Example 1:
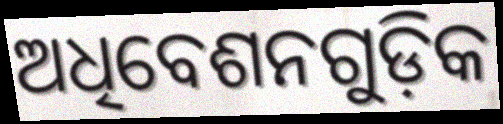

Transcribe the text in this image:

ଅଧିବେଶନଗୁଡ଼ିକ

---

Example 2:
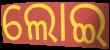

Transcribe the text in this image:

ଲୋଇ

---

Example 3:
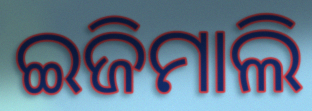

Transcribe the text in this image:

ଇଜିମାଲି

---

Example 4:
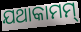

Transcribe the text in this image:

ଯଥାକାମମ୍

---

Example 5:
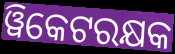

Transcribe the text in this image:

ୱିକେଟରକ୍ଷକ